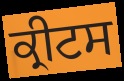
ਕ੍ਰੀਟਸ